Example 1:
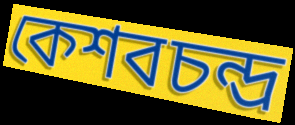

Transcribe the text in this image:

কেশবচন্দ্র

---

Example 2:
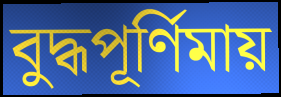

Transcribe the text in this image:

বুদ্ধপূর্ণিমায়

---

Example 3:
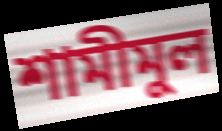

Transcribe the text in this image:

শামীমুল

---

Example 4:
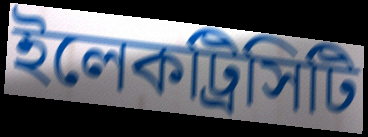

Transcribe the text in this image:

ইলেকট্রিসিটি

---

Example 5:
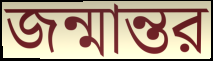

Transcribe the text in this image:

জন্মান্তর